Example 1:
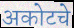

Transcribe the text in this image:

अकोटचे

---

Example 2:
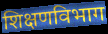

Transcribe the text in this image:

शिक्षणविभाग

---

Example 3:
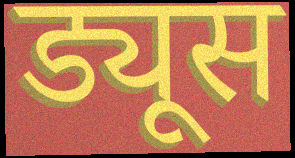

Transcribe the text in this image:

ड्यूस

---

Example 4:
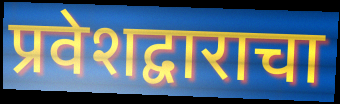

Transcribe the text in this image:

प्रवेशद्वाराचा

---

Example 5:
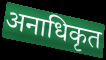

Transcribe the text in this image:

अनाधिकृत